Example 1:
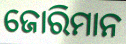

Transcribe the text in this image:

ଜୋରିମାନ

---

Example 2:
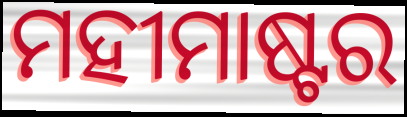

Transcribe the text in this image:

ମହୀମାଷ୍ଟର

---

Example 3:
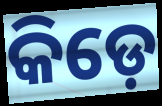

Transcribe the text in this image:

କିଡ଼େ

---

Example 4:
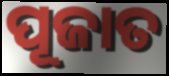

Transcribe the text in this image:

ପୂଜାତ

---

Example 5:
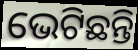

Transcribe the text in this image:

ଭେଟିଛନ୍ତି